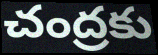
చంద్రకు